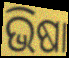
ଭିଷା